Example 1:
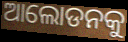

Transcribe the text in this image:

ଆଲୋଡନକୁ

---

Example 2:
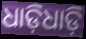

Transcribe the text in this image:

ଧାଡ଼ିଧାଡ଼ି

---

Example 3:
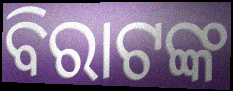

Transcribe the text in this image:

ବିରାଟଙ୍କ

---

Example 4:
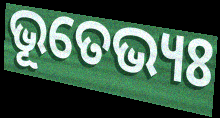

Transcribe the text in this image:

ଭୂତେଭ୍ୟଃ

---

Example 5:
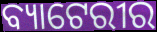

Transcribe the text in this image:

ବ୍ୟାଟେରୀର